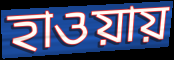
হাওয়ায়